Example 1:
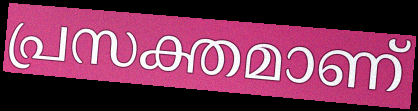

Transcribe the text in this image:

പ്രസക്തമാണ്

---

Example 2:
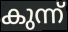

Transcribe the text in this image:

കുന്ന്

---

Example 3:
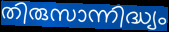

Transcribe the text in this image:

തിരുസാന്നിദ്ധ്യം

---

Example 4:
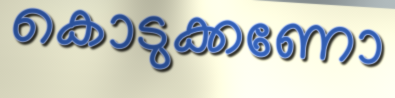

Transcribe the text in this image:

കൊടുക്കണോ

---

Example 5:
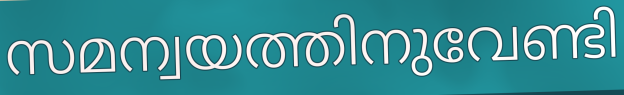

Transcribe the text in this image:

സമന്വയത്തിനുവേണ്ടി